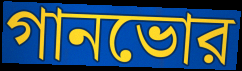
গানভোর